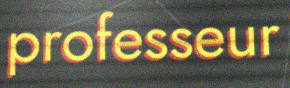
professeur